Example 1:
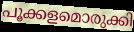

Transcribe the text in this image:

പൂക്കളമൊരുക്കി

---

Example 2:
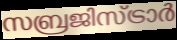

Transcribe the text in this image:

സബ്രജിസ്ട്രാർ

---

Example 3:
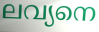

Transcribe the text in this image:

ലവ്യനെ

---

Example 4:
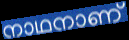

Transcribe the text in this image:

നാഥനാണ്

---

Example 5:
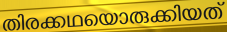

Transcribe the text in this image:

തിരക്കഥയൊരുക്കിയത്